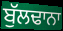
ਬੁੱਲਢਾਨਾ